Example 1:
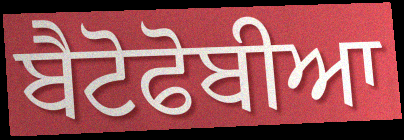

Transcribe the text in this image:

ਬੈਟੋਫੋਬੀਆ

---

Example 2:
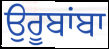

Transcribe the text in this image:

ਉਰੂਬਾਂਬਾ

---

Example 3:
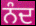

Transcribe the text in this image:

ਨੰਦ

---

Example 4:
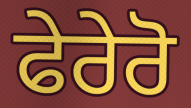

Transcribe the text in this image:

ਫੇਰੇਰੋ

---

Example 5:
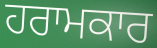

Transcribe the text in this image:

ਹਰਾਮਕਾਰ